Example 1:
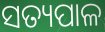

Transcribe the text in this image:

ସତ୍ୟପାଳ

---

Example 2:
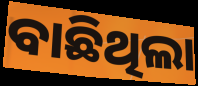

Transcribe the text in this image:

ବାଛିଥିଲା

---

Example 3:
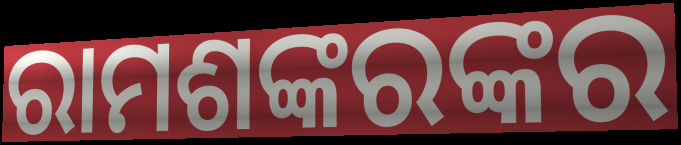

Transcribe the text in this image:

ରାମଶଙ୍କରଙ୍କର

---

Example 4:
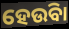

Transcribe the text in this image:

ହେଉିବା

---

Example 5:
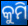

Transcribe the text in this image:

କୁମି